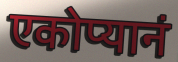
एकोप्यानं